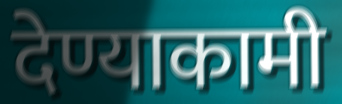
देण्याकामी